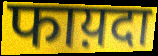
फाय़दा